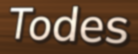
Todes